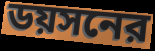
ডয়সনের